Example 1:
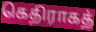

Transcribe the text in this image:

கெதிராகத்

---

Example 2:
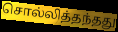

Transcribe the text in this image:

சொல்லித்தந்தது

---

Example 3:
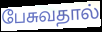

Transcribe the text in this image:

பேசுவதால்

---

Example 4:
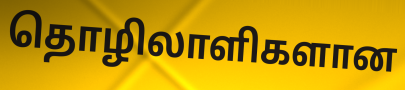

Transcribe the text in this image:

தொழிலாளிகளான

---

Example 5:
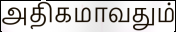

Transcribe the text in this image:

அதிகமாவதும்